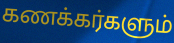
கணக்கர்களும்